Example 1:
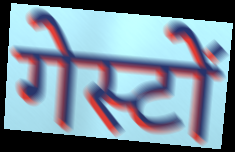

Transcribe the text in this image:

गेस्टों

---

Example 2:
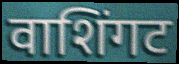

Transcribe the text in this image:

वाशिंगट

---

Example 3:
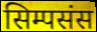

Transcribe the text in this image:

सिम्पसंस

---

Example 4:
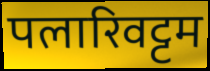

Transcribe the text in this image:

पलारिवट्टम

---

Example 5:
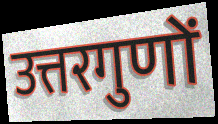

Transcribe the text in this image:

उत्तरगुणों